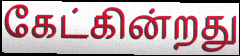
கேட்கின்றது